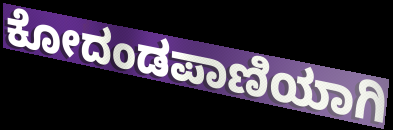
ಕೋದಂಡಪಾಣಿಯಾಗಿ